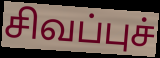
சிவப்புச்